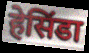
हेसिंडा